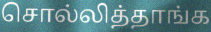
சொல்லித்தாங்க